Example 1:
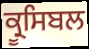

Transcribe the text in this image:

ਕ੍ਰੂਸਿਬਲ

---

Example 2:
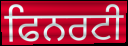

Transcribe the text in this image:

ਫਿਨਰਟੀ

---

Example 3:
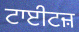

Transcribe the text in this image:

ਟਾਈਟਜ਼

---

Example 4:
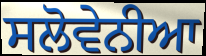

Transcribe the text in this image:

ਸਲੋਵੇਨੀਆ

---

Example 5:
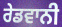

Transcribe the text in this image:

ਰੇਡਵਾਨੀ